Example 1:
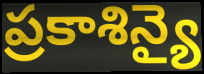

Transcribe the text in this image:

ప్రకాశిన్యై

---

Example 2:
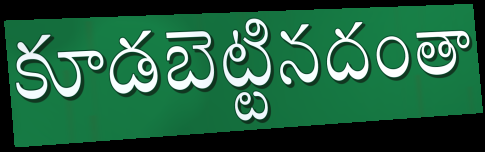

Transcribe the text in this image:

కూడబెట్టినదంతా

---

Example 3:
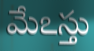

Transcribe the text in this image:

మేఽస్తు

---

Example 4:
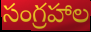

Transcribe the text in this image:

సంగ్రహాల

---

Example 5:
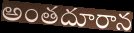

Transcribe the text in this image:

అంతదూరాన